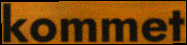
kommet